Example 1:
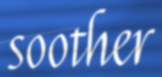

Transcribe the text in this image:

soother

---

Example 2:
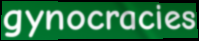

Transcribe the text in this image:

gynocracies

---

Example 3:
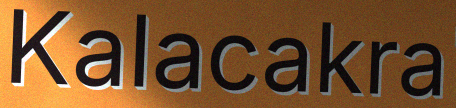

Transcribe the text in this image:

Kalacakra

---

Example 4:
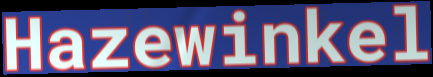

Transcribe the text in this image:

Hazewinkel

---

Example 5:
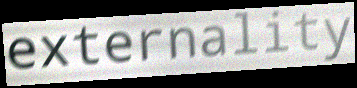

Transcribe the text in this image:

externality